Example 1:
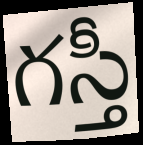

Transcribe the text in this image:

గస్తీ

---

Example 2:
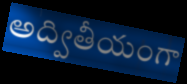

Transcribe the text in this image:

అద్వితీయంగా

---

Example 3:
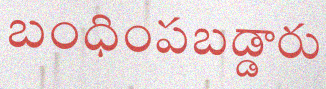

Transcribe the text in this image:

బంధింపబడ్డారు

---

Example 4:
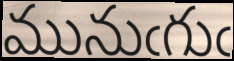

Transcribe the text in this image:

మునుఁగుఁ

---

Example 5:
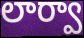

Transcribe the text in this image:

లార్వా